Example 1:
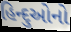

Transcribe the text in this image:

હિન્દુઓનો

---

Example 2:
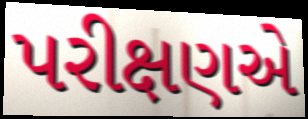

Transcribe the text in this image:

પરીક્ષણએ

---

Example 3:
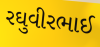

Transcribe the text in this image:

રઘુવીરભાઈ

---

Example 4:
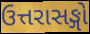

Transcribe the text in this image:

ઉત્તરાસઙ્ગો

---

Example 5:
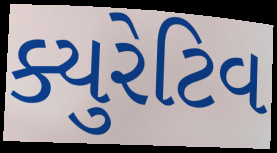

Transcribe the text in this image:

ક્યુરેટિવ